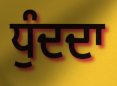
ਧੁੰਦਦਾ